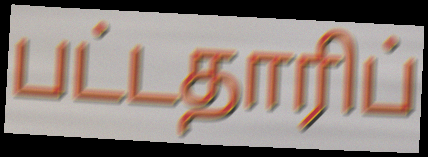
பட்டதாரிப்